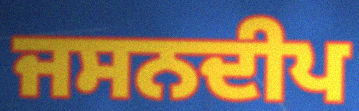
ਜਸਨਦੀਪ